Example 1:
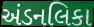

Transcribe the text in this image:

અંડનલિકા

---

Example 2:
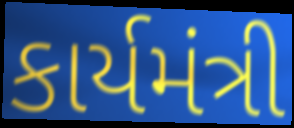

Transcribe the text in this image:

કાર્યમંત્રી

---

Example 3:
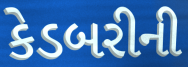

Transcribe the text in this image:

કેડબરીની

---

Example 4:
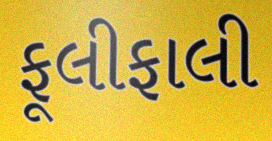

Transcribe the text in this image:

ફૂલીફાલી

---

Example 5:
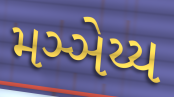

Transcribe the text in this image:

મઞ્ઞેય્ય